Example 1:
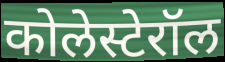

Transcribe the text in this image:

कोलेस्टेरॉल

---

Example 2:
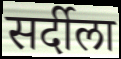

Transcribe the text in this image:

सर्दीला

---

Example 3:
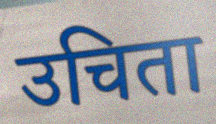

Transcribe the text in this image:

उचिता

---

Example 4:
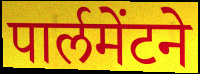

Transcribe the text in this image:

पार्लमेंटने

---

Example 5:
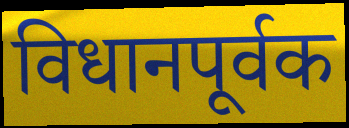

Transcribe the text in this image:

विधानपूर्वक